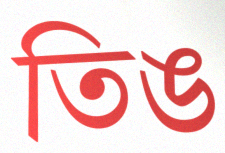
তিঙ